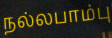
நல்லபாம்பு